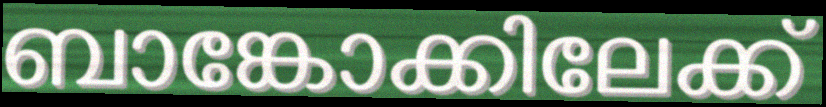
ബാങ്കോക്കിലേക്ക്